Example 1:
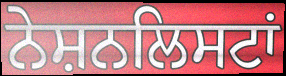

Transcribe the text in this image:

ਨੇਸ਼ਨਲਿਸਟਾਂ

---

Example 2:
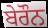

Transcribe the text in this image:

ਬੇਰੌਨ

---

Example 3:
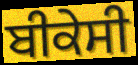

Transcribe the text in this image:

ਬੀਕੇਸੀ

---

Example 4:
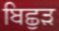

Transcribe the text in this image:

ਬਿਛੁੜ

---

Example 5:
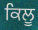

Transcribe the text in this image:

ਕਿਲੂ